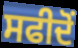
ਸਫੀਦੋਂ